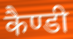
कैण्डी